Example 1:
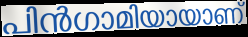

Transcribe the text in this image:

പിൻഗാമിയായാണ്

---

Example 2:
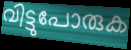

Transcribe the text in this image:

വിട്ടുപോരുക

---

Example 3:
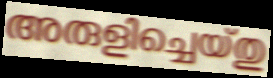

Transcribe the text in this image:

അരുളിച്ചെയ്തു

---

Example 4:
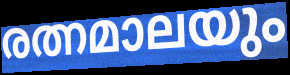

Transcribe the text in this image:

രത്നമാലയും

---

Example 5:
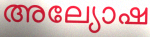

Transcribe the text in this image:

അല്യോഷ